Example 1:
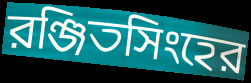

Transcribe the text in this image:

রঞ্জিতসিংহের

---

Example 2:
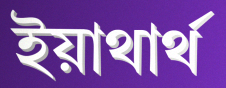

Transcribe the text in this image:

ইয়াথার্থ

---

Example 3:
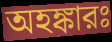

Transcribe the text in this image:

অহঙ্কারঃ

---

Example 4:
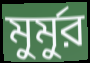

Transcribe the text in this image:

মুর্মুর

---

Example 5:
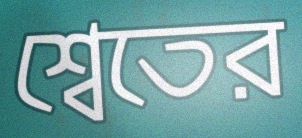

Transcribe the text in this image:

শ্বেতের